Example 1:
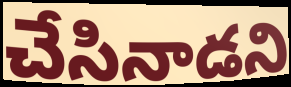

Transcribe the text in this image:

చేసినాడని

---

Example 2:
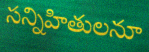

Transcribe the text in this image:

సన్నిహితులనూ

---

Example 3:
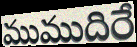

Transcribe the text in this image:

ముముదిరే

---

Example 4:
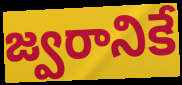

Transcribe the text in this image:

జ్వరానికే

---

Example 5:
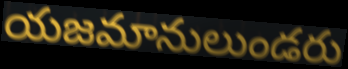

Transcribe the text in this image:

యజమానులుండరు